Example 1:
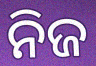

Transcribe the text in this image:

ନିଜ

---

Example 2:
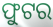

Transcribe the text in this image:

ଫୁଟର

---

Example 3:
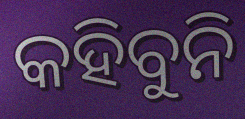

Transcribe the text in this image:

କହିବୁନି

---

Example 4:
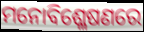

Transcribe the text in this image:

ମନୋବିଶ୍ଳେଷଣରେ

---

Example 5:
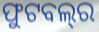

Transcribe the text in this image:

ଫୁଟବଲ୍‍ର